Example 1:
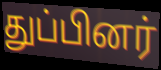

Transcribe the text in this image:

துப்பினர்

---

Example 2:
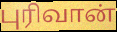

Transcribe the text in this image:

புரிவான்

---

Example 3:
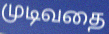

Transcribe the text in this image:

முடிவதை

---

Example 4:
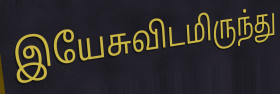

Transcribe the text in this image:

இயேசுவிடமிருந்து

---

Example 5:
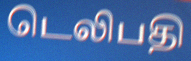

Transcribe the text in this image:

டெலிபதி